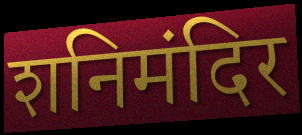
शनिमंदिर